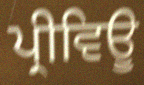
ਪ੍ਰੀਵਿਊ